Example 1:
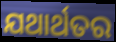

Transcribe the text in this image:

ଯଥାର୍ଥତର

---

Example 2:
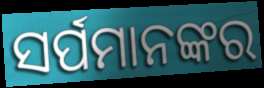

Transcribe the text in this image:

ସର୍ପମାନଙ୍କର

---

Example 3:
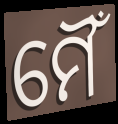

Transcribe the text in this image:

ମୈଁ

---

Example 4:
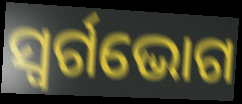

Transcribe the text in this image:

ସ୍ୱର୍ଗଭୋଗ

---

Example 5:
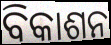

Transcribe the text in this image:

ବିକାଶନ